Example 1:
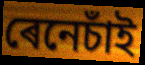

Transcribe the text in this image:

ৰেনেচাঁই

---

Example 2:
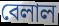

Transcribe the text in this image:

বেলাল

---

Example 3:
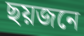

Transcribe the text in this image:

ছয়জনে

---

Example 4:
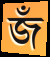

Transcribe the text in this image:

জঁ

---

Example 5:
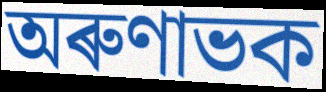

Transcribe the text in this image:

অৰুণাভক